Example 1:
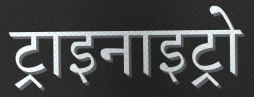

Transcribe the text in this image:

ट्राइनाइट्रो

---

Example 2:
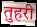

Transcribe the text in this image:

तुहरी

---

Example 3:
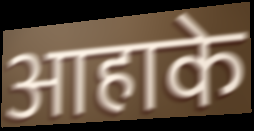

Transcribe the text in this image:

आहाके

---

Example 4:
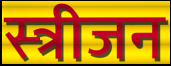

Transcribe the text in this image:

स्त्रीजन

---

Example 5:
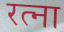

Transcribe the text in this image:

रत्ना